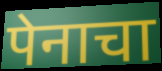
पेनाचा